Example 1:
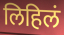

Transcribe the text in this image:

लिहिलं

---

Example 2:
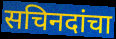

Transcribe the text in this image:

सचिनदांचा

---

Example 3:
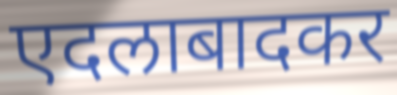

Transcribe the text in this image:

एदलाबादकर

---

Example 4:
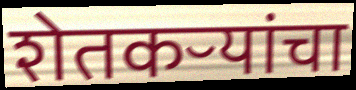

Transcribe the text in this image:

शेतकऱ्यांचा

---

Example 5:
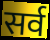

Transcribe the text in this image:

सर्व